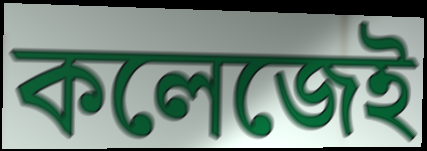
কলেজেই